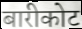
बारीकोट